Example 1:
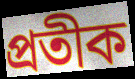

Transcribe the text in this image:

প্রতীক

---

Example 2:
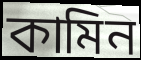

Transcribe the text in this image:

কামিন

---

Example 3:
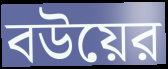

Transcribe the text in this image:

বউয়ের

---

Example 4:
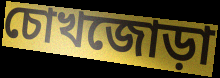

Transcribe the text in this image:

চোখজোড়া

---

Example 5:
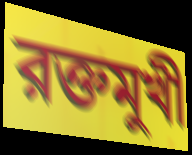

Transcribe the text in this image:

রক্তমুখী